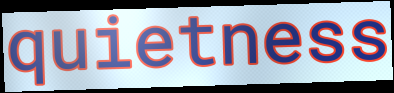
quietness